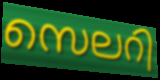
സെലറി